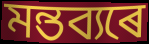
মন্তব্যৰে